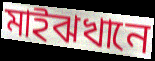
মাইঝখানে